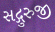
સદ્ગુરુજી